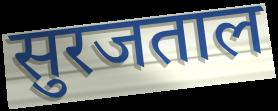
सुरजताल